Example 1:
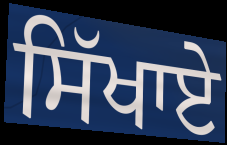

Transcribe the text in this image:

ਸਿੱਖਾਏ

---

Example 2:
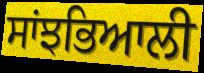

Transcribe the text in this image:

ਸਾਂਝਭਿਆਲੀ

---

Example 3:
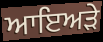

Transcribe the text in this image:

ਆਇਅੜੇ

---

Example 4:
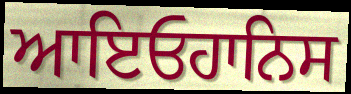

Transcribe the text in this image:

ਆਇਓਹਾਨਿਸ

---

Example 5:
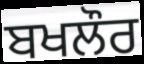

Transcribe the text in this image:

ਬਖਲੌਰ